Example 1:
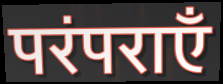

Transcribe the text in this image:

परंपराएँ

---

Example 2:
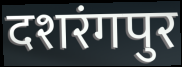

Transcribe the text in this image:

दशरंगपुर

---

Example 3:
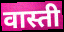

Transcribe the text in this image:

वास्ती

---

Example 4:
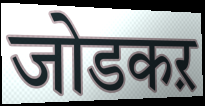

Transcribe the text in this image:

जोडकऱ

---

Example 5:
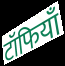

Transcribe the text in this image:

टॉफियाँ